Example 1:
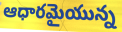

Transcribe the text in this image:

ఆధారమైయున్న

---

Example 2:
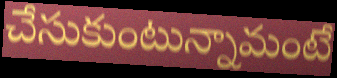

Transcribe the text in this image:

చేసుకుంటున్నామంటే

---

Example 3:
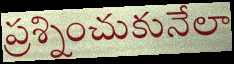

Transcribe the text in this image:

ప్రశ్నించుకునేలా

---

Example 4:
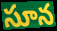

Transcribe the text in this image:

సూన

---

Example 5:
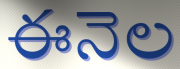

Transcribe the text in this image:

ఈనెల